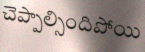
చెప్పాల్సిందిపోయి